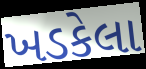
ખડકેલા